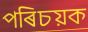
পৰিচয়ক